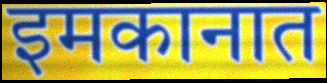
इमकानात